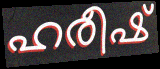
ഹരീഷ്